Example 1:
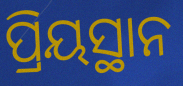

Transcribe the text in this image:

ପ୍ରିୟସ୍ଥାନ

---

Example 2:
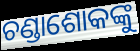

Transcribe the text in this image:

ଚଣ୍ଡାଶୋକଙ୍କୁ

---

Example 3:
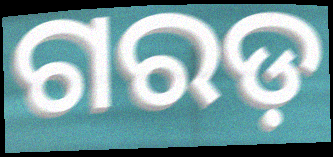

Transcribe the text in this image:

ଗରଡ଼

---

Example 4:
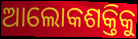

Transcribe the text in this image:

ଆଲୋକଶକ୍ତିକୁ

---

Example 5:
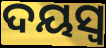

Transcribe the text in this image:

ଦୟସ୍ଵ